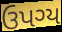
ઉપગ્ય